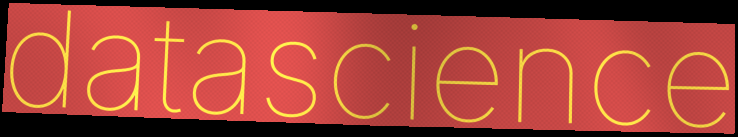
datascience